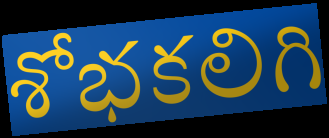
శోభకలిగి